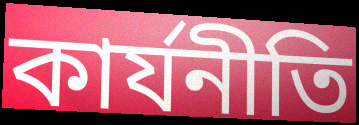
কার্যনীতি